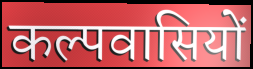
कल्पवासियों